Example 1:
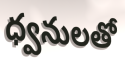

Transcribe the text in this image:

ధ్వనులతో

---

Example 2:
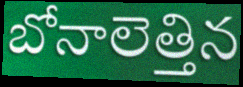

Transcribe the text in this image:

బోనాలెత్తిన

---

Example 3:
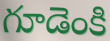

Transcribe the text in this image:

గూడెంకి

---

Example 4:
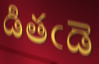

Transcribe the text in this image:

డితఁడె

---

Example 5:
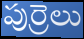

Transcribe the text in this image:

పుర్రెలు